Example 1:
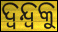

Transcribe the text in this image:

ଦ୍ୱନ୍ଦ୍ୱକୁ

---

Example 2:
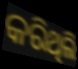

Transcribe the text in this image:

କରିଥିଲି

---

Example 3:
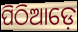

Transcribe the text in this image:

ପିଠିଆଡ଼େ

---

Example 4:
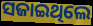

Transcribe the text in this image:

ସଜାଇଥିଲେ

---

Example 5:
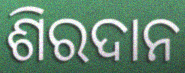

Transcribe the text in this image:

ଶିରଦାନ